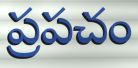
ప్రపచం